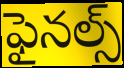
ఫైనల్స్